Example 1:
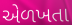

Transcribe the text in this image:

એળખતા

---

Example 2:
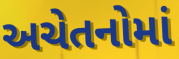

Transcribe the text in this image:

અચેતનોમાં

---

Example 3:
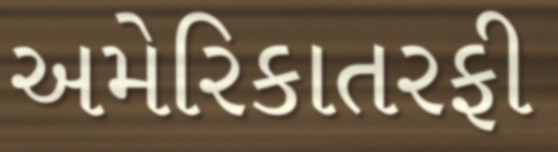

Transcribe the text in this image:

અમેરિકાતરફી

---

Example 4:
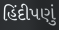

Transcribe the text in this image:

હિંદીપણું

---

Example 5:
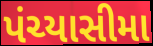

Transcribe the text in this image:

પંચ્યાસીમા